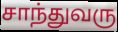
சாந்துவரு